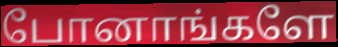
போனாங்களே